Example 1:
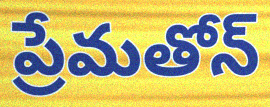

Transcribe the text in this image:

ప్రేమతోన్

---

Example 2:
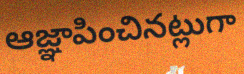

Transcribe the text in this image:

ఆజ్ఞాపించినట్లుగా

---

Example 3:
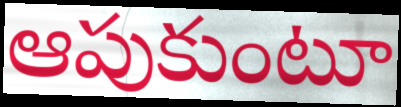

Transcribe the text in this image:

ఆపుకుంటూ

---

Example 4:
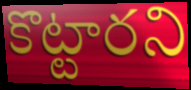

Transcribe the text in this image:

కొట్టారని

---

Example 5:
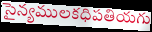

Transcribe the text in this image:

సైన్యములకధిపతియగు